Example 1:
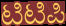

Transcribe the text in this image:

ಟಿಟಿಪಿ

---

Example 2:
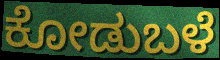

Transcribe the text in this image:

ಕೋಡುಬಳೆ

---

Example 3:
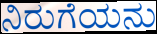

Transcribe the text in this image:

ನಿರುಗೆಯನು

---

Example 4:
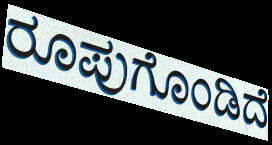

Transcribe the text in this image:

ರೂಪುಗೊಂಡಿದೆ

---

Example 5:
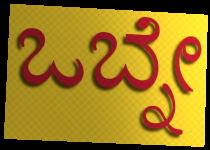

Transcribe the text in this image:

ಒಬ್ನೇ